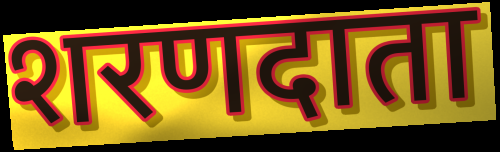
शरणदाता